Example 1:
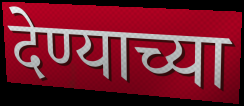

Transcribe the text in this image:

देण्याच्या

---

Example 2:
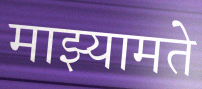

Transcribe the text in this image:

माझ्यामते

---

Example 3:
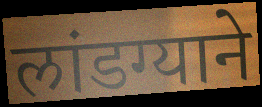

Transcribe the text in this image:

लांडग्याने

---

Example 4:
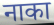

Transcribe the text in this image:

नाका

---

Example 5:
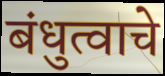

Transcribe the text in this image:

बंधुत्वाचे